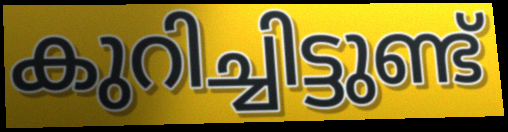
കുറിച്ചിട്ടുണ്ട്